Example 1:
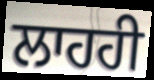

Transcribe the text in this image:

ਲਾਹਹੀ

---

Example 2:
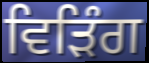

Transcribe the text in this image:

ਵਿੜਿੰਗ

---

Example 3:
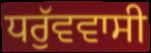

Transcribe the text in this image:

ਧਰੁੱਵਵਾਸੀ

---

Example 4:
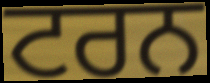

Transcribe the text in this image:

ਟਰਨ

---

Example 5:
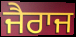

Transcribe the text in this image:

ਜੈਰਾਜ